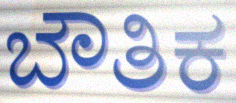
ಬೌತಿಕ